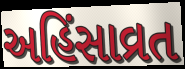
અહિંસાવ્રત